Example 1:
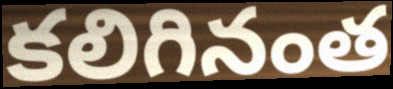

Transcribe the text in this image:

కలిగినంత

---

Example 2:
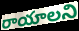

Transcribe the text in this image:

రాయాలని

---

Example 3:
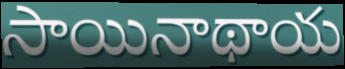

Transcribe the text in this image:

సాయినాథాయ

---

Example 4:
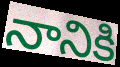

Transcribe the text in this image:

నానికి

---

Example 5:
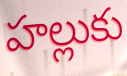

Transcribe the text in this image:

హల్లుకు